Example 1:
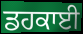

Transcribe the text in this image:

ਡਹਕਾਈ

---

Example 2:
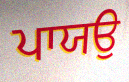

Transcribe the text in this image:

ਪਾਯਉ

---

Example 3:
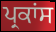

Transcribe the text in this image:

ਪ੍ਰਕਾਂਸ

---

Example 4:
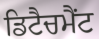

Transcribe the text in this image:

ਡਿਟੈਚਮੈਂਟ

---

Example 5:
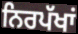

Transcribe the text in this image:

ਨਿਰਪੱਖਾਂ